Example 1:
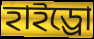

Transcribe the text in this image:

হাইড্রো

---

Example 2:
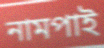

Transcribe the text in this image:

নামপাই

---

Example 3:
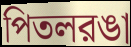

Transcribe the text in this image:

পিতলরঙা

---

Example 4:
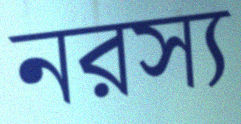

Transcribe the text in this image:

নরস্য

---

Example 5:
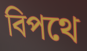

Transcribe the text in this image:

বিপথে